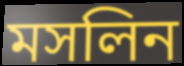
মসলিন